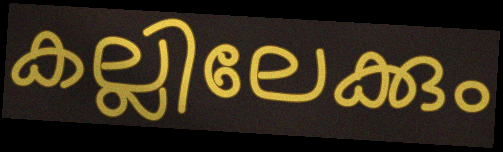
കല്ലിലേക്കും